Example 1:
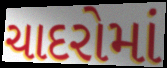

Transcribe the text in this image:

ચાદરોમાં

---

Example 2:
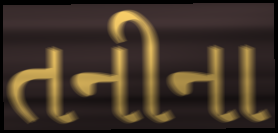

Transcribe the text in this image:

તનીના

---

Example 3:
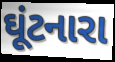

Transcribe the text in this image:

ઘૂંટનારા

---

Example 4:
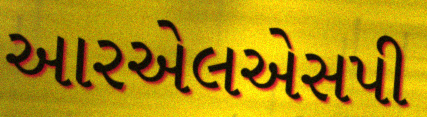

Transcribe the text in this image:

આરએલએસપી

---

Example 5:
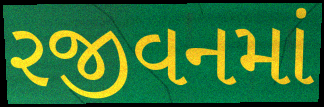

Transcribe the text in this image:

રજીવનમાં